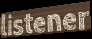
listener